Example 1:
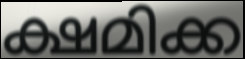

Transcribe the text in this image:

ക്ഷമിക്ക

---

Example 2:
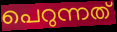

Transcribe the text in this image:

പെറുന്നത്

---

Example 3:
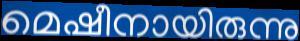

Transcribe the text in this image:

മെഷീനായിരുന്നു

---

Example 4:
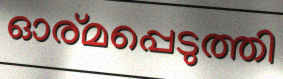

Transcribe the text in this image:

ഓര്മപ്പെടുത്തി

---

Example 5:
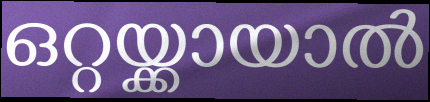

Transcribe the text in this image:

ഒറ്റയ്ക്കായാൽ